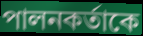
পালনকর্তাকে